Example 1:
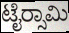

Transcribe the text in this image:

ಟೈರ‍್ಸಾಮಿ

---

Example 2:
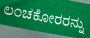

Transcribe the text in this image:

ಲಂಚಕೋರರನ್ನು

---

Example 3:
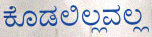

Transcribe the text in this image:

ಕೊಡಲಿಲ್ಲವಲ್ಲ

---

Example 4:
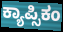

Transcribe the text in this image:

ಕ್ಯಾಪ್ಸಿಕಂ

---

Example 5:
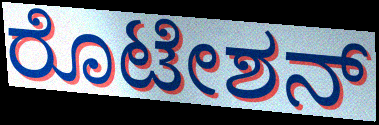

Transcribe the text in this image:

ರೊಟೇಶನ್